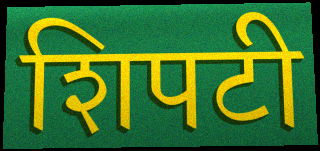
शिपटी